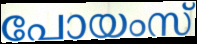
പോയംസ്